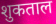
शुकताल